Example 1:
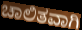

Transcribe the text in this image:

ಚಾಲಿತವಾಗಿ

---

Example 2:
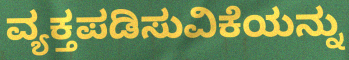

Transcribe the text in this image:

ವ್ಯಕ್ತಪಡಿಸುವಿಕೆಯನ್ನು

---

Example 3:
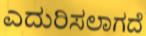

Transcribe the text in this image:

ಎದುರಿಸಲಾಗದೆ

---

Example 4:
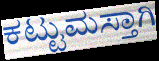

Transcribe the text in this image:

ಕಟ್ಟುಮಸ್ತಾಗಿ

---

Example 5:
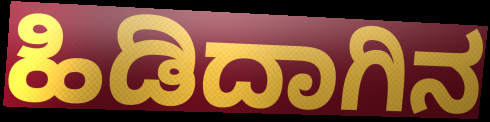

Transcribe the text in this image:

ಹಿಡಿದಾಗಿನ